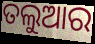
ତଲୁଆର